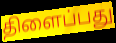
திளைப்பது